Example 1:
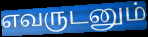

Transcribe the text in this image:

எவருடனும்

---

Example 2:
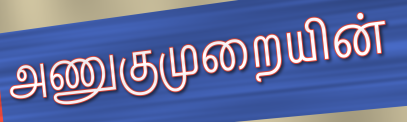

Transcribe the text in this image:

அணுகுமுறையின்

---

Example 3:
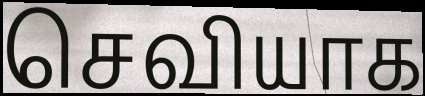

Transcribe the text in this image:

செவியாக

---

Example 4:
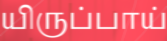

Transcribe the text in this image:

யிருப்பாய்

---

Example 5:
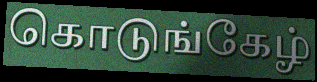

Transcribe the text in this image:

கொடுங்கேழ்